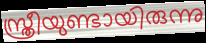
സ്ത്രീയുണ്ടായിരുന്നു